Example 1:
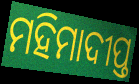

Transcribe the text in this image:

ମହିମାଦୀପ୍ତ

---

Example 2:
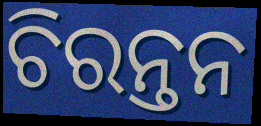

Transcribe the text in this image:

ଚିରନ୍ତନ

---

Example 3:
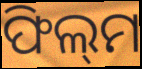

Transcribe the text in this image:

ଫିଲ୍‌ମ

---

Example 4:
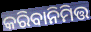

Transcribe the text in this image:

କରିବାନିମିତ୍ତ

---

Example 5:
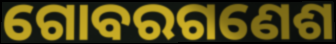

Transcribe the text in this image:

ଗୋବରଗଣେଶ